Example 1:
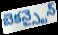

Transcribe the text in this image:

బెకన్స్టైన్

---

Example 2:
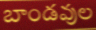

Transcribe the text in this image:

బాండవుల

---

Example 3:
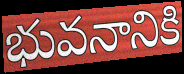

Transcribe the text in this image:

భువనానికి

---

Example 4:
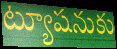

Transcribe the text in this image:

ట్యూషనుకు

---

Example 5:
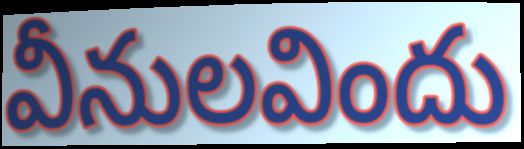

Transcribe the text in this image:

వీనులవిందు